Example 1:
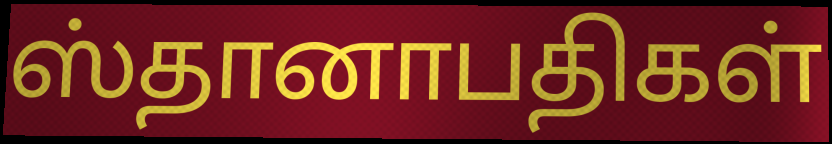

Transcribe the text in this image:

ஸ்தானாபதிகள்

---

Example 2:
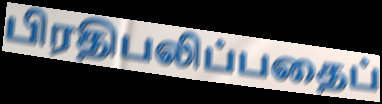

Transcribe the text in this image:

பிரதிபலிப்பதைப்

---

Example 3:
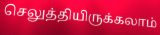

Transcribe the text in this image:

செலுத்தியிருக்கலாம்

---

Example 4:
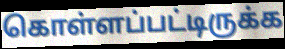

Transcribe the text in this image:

கொள்ளப்பட்டிருக்க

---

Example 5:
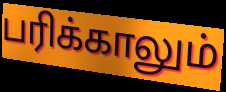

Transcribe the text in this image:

பரிக்காலும்